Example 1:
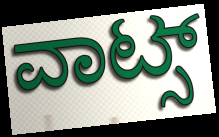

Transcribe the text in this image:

ವಾಟ್ಸ್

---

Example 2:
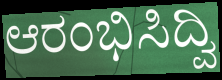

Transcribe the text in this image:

ಆರಂಭಿಸಿದ್ವಿ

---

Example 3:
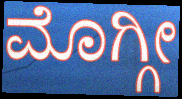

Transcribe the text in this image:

ಮೊಗ್ಗೀ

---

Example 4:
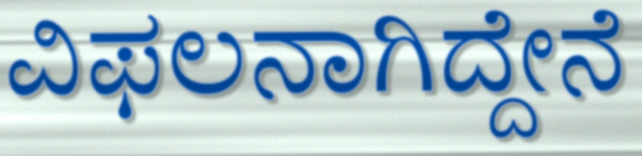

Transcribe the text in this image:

ವಿಫಲನಾಗಿದ್ದೇನೆ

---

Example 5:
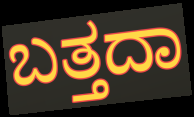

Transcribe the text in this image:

ಬತ್ತದಾ